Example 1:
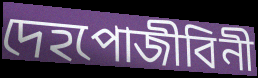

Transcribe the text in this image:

দেহপোজীবিনী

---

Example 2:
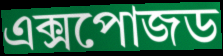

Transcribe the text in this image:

এক্সপোজড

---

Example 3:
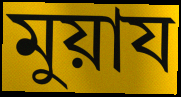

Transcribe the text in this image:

মুয়ায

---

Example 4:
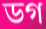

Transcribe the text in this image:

ডগ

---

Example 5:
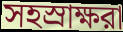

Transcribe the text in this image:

সহস্রাক্ষরা